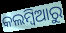
କଲମ୍ବିଆରୁ